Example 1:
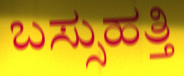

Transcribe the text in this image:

ಬಸ್ಸುಹತ್ತಿ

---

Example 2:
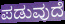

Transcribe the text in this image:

ಪಡುವುದೆ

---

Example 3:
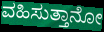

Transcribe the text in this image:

ವಹಿಸುತ್ತಾನೋ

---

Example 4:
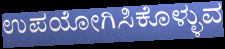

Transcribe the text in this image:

ಉಪಯೋಗಿಸಿಕೊಳ್ಳುವ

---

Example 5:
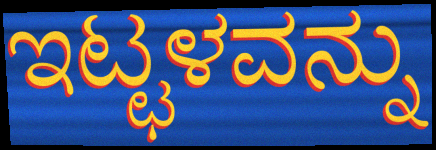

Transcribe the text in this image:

ಇಟ್ಟಳವನ್ನು